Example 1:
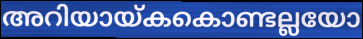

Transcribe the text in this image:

അറിയായ്കകൊണ്ടല്ലയോ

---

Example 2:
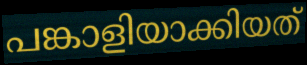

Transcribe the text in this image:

പങ്കാളിയാക്കിയത്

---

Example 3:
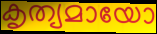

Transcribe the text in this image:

കൃത്യമായോ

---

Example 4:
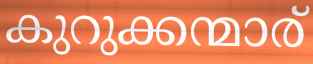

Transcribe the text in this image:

കുറുക്കന്മാര്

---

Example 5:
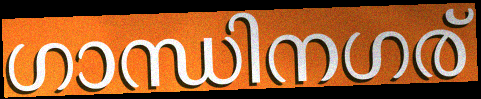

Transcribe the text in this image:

ഗാന്ധിനഗര്